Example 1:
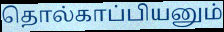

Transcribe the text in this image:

தொல்காப்பியனும்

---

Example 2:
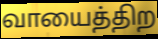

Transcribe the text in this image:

வாயைத்திற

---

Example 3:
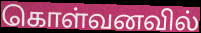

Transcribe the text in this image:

கொள்வனவில்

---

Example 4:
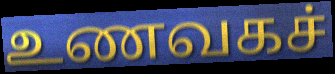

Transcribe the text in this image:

உணவகச்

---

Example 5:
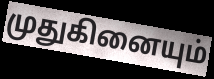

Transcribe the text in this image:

முதுகினையும்